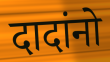
दादांनो